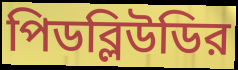
পিডব্লিউডির